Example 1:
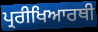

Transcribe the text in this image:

ਪ੍ਰਰੀਖਿਆਰਥੀ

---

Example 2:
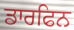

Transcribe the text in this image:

ਡਾਰਫਿਨ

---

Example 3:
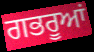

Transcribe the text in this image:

ਗਭਰੂਆਂ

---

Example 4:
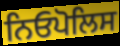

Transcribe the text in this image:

ਨਿਓਪੋਲਿਸ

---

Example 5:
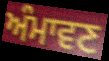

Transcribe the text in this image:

ਅੰਮਾਵਣ